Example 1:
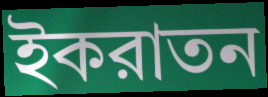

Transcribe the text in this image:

ইকরাতন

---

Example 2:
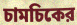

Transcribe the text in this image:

চামচিকের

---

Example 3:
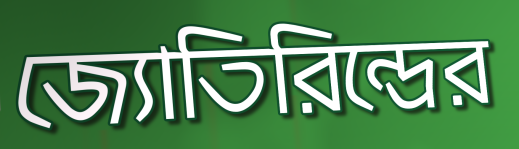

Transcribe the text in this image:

জ্যোতিরিন্দ্রের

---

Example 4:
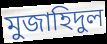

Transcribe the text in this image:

মুজাহিদুল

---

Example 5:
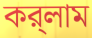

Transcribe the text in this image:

কর্‌লাম